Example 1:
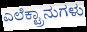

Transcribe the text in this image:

ಎಲೆಕ್ಟ್ರಾನುಗಳು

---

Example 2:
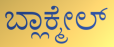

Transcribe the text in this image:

ಬ್ಲಾಕ್ಮೇಲ್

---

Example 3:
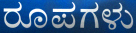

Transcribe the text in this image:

ರೂಪಗಳು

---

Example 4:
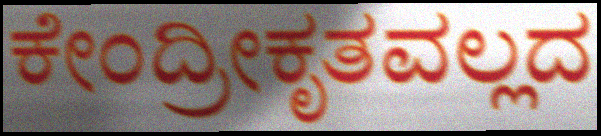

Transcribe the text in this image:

ಕೇಂದ್ರೀಕೃತವಲ್ಲದ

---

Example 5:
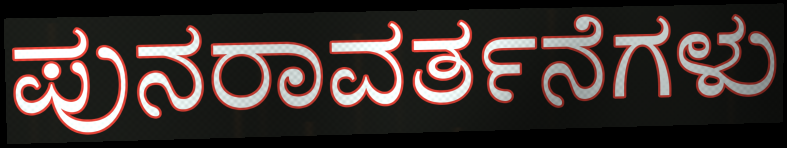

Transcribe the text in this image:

ಪುನರಾವರ್ತನೆಗಳು